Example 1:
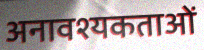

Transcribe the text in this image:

अनावश्यकताओं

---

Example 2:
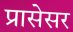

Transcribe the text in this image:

प्रासेसर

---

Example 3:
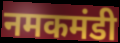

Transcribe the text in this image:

नमकमंडी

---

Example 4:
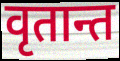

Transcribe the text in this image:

वृतान्त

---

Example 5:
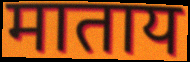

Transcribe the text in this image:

माताय